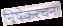
निषेकरचना